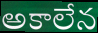
అకాలేన